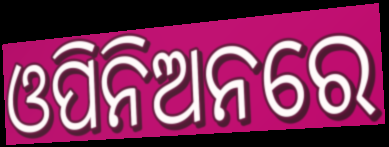
ଓପିନିଅନରେ